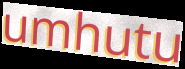
umhutu